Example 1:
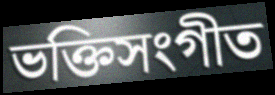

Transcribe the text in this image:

ভক্তিসংগীত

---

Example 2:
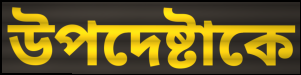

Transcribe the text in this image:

উপদেষ্টাকে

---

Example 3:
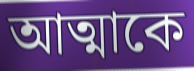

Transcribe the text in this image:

আত্মাকে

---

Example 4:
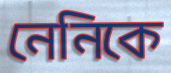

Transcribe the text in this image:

নেনিকে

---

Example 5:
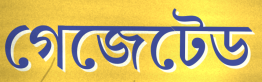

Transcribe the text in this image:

গেজেটেড